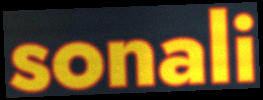
sonali